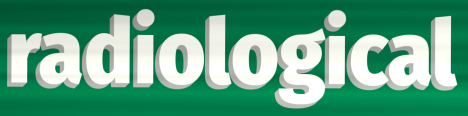
radiological